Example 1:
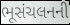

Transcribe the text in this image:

ભૂસંચલનની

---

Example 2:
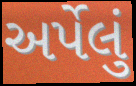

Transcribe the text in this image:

અર્પેલું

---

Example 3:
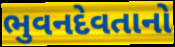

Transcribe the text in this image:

ભુવનદેવતાનો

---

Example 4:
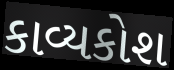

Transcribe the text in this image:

કાવ્યકોશ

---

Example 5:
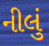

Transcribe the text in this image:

નીલું